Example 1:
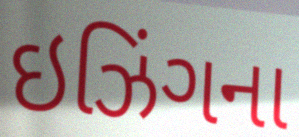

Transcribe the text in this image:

ઇઝિંગના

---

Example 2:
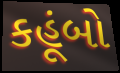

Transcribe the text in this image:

કહૂંબો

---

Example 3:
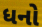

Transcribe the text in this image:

ધનો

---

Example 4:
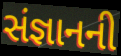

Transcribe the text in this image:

સંજ્ઞાનની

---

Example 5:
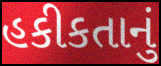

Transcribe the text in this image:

હકીકતાનું